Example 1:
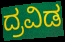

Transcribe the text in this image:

ದ್ರವಿಡ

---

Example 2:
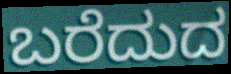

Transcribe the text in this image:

ಬರೆದುದ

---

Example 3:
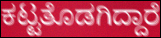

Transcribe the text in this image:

ಕಟ್ಟತೊಡಗಿದ್ದಾರೆ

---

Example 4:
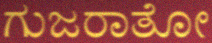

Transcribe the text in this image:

ಗುಜರಾತೋ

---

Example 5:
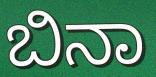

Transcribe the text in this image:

ಬಿನಾ